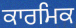
ਕਾਰਮਿਕ